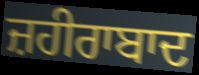
ਜ਼ਹੀਰਾਬਾਦ